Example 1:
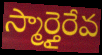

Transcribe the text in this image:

స్మార్తైరేవ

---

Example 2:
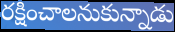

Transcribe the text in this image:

రక్షించాలనుకున్నాడు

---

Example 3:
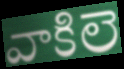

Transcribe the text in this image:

వాకిలె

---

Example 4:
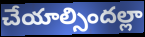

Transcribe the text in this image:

చేయాల్సిందల్లా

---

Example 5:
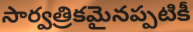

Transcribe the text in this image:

సార్వత్రికమైనప్పటికీ